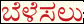
ಬೆಳೆಸಲು